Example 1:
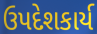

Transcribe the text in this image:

ઉપદેશકાર્ય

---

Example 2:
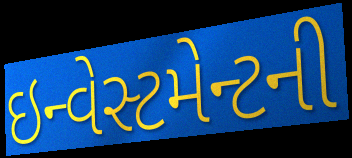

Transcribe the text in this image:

ઇન્વેસ્ટમેન્ટની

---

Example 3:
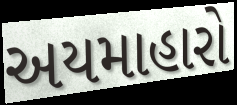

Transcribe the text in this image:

અયમાહારો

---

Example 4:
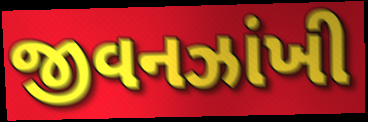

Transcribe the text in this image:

જીવનઝાંખી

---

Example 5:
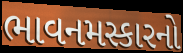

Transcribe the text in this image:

ભાવનમસ્કારનો